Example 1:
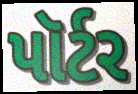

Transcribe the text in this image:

પૉર્ટર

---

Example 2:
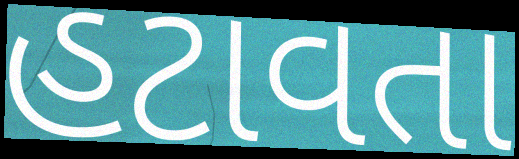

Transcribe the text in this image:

હટાવતા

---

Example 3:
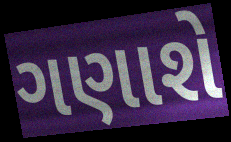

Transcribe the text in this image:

ગણાશે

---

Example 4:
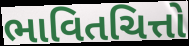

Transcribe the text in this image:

ભાવિતચિત્તો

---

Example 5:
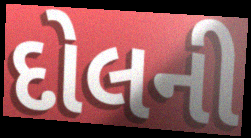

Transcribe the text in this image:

દોલની